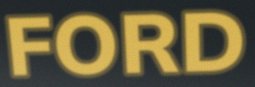
FORD